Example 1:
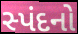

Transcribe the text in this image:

સ્પંદનો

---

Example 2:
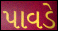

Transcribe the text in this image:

પાવડે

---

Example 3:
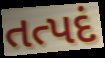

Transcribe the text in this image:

તત્પદં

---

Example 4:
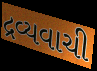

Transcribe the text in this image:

દ્રવ્યવાચી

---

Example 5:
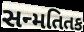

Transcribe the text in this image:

સન્મતિતક